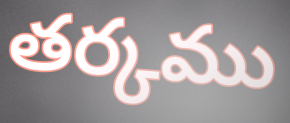
తర్కము